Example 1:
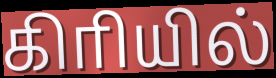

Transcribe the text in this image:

கிரியில்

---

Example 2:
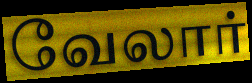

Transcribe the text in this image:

வேலார்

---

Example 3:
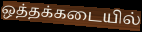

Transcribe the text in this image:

ஒத்தக்கடையில்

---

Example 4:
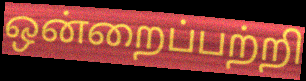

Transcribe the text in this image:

ஒன்றைப்பற்றி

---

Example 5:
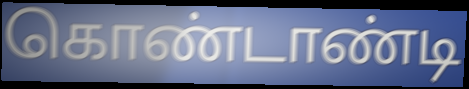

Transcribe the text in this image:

கொண்டாண்டி